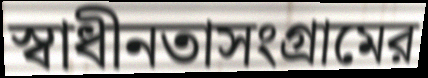
স্বাধীনতাসংগ্রামের